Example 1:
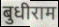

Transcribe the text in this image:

बुधीराम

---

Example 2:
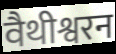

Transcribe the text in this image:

वैथीश्वरन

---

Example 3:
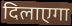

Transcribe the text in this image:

दिलाएगा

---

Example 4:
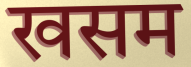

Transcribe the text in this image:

खसम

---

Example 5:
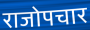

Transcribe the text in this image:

राजोपचार